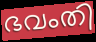
ഭവംതി